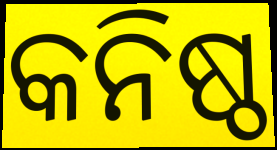
କନିଷ୍ଠ